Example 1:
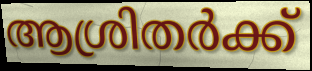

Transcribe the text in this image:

ആശ്രിതർക്ക്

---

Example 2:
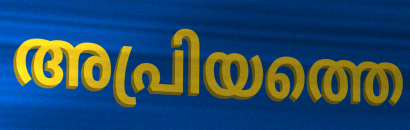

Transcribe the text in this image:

അപ്രിയത്തെ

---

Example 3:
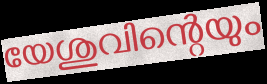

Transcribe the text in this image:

യേശുവിന്റെയും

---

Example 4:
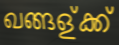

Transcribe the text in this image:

ഖങ്ങള്ക്ക്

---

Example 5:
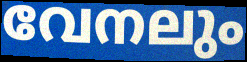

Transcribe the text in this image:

വേനലും